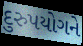
દુરુપયોગને